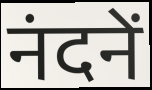
नंदनें